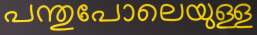
പന്തുപോലെയുള്ള